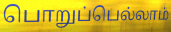
பொறுப்பெல்லாம்